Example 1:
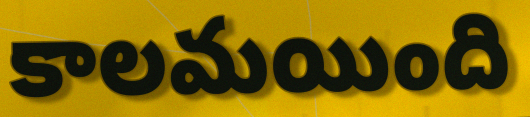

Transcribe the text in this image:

కాలమయింది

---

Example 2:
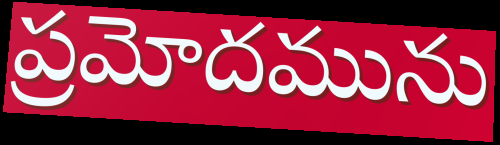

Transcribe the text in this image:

ప్రమోదమును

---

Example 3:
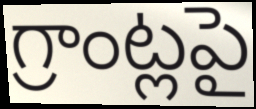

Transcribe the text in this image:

గ్రాంట్లపై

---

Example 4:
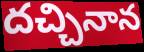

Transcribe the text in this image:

దచ్చినాన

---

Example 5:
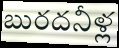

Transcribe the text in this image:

బురదనీళ్ల